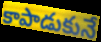
కాపాడుకునే